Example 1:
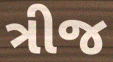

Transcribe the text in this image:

ત્રીજ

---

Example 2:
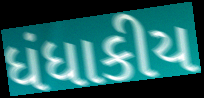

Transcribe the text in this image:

ધંધાકીય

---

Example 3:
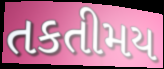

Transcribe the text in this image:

તકતીમય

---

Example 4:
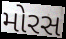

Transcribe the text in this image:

મોરસ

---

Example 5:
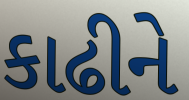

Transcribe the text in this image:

કાઢીને